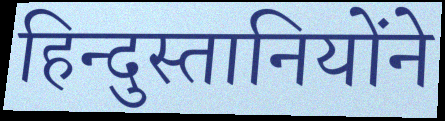
हिन्दुस्तानियोंने